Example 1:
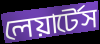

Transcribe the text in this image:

লেয়ার্টেস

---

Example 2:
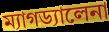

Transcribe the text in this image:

ম্যাগড্যালেনা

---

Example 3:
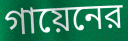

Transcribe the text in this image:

গায়েনের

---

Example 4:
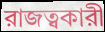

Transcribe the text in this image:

রাজত্বকারী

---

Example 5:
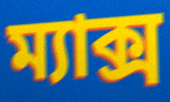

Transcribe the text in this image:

ম্যাক্স